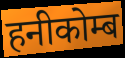
हनीकोम्ब